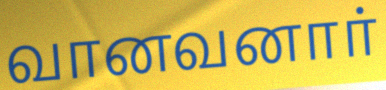
வானவனார்